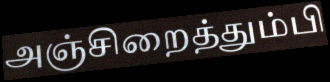
அஞ்சிறைத்தும்பி